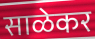
साळेकर